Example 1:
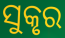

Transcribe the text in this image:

ସୁକୃର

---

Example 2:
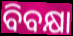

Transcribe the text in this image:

ବିବକ୍ଷା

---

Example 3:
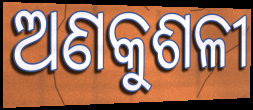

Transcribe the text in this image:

ଅଣକୁଶଳୀ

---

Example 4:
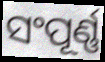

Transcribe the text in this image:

ସଂପୂର୍ଣ୍ଣ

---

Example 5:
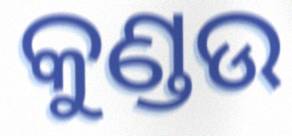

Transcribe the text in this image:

କୁଣ୍ଡଉ